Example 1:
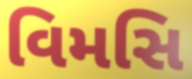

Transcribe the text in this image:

વિમસિ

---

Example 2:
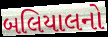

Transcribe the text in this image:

બલિયાલનો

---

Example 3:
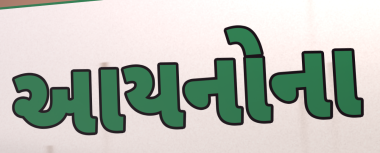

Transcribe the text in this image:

આયનોના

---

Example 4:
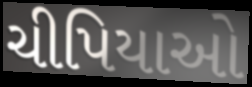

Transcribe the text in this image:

ચીપિયાઓ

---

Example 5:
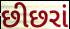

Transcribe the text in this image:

છીછરાં